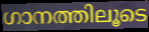
ഗാനത്തിലൂടെ